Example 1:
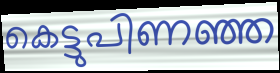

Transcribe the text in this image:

കെട്ടുപിണഞ്ഞ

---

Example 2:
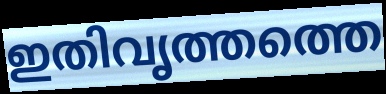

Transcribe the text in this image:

ഇതിവൃത്തത്തെ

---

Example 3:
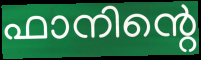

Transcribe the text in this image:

ഫാനിന്റെ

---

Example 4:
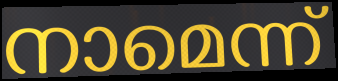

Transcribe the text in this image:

നാമെന്ന്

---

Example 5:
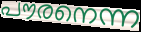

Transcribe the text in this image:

പൗരനെന്ന